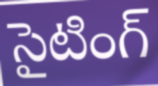
సైటింగ్